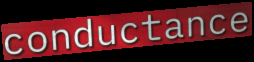
conductance